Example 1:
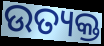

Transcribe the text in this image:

ଉତ୍ୟକ୍ତ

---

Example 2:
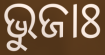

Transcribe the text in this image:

ଭୁଜାଃ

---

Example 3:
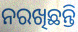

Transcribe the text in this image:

ନରଖିଛନ୍ତି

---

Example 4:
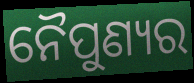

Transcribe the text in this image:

ନୈପୁଣ୍ୟର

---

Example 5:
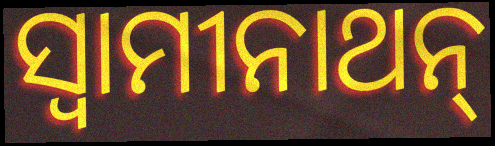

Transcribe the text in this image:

ସ୍ବାମୀନାଥନ୍